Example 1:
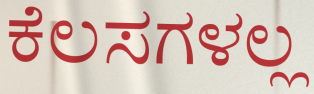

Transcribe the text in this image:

ಕೆಲಸಗಳಲ್ಲ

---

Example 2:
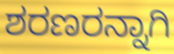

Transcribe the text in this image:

ಶರಣರನ್ನಾಗಿ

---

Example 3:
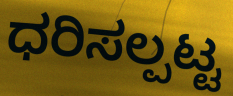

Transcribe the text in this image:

ಧರಿಸಲ್ಪಟ್ಟ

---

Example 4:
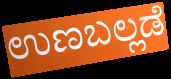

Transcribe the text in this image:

ಉಣಬಲ್ಲಡೆ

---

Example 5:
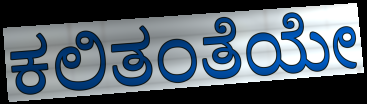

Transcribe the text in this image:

ಕಲಿತಂತೆಯೇ